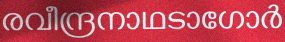
രവീന്ദ്രനാഥടാഗോർ